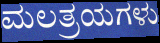
ಮಲತ್ರಯಗಳು